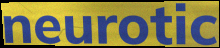
neurotic